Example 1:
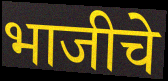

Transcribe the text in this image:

भाजीचे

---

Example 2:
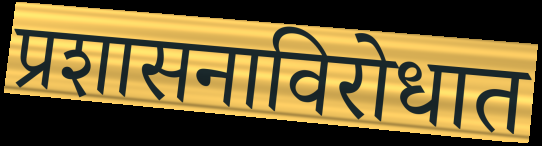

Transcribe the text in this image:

प्रशासनाविरोधात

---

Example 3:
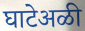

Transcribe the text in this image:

घाटेअळी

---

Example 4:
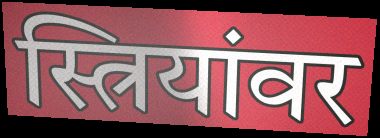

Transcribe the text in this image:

स्त्रियांवर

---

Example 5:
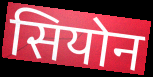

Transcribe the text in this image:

सियोन